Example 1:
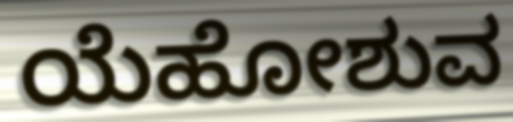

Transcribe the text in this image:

ಯೆಹೋಶುವ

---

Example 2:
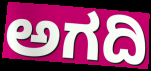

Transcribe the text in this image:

ಅಗದಿ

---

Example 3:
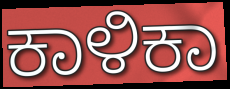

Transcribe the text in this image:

ಕಾಳಿಕಾ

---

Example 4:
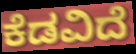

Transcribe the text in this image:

ಕೆಡವಿದೆ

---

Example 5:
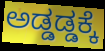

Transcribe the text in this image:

ಅಡ್ಡಡ್ಡಕ್ಕೆ